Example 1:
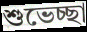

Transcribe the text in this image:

শুভেচ্ছা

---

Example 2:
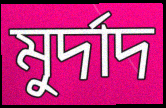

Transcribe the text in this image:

মুৰ্দাদ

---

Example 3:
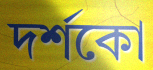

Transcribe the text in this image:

দৰ্শকো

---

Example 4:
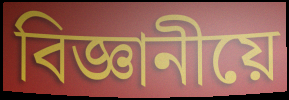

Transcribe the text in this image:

বিজ্ঞানীয়ে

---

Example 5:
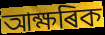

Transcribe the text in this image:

আক্ষৰিক